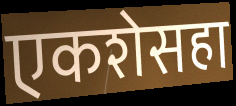
एकशेसहा